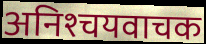
अनिश्चयवाचक